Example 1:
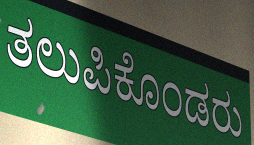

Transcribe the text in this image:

ತಲುಪಿಕೊಂಡರು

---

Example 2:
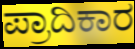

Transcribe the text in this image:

ಪ್ರಾದಿಕಾರ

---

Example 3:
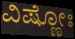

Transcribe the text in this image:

ವಿಷ್ಣೋಃ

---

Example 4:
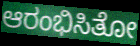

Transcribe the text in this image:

ಆರಂಭಿಸಿತೋ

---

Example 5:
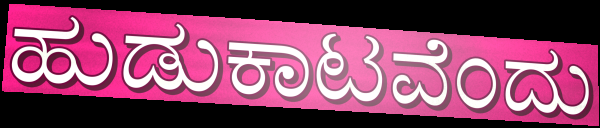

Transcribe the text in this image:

ಹುಡುಕಾಟವೆಂದು